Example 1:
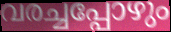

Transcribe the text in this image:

വരച്ചപ്പോഴും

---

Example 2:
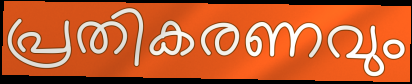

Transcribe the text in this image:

പ്രതികരണവും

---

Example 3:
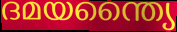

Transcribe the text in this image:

ദമയന്ത്യൈ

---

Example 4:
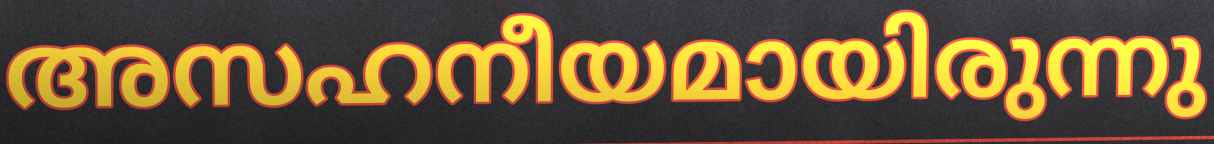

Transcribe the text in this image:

അസഹനീയമായിരുന്നു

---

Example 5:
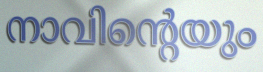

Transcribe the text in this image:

നാവിന്റെയും